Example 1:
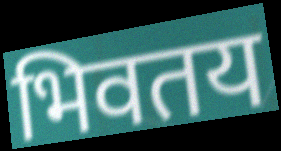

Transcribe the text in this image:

भिवतय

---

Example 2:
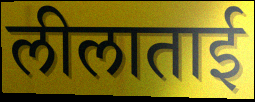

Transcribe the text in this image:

लीलाताई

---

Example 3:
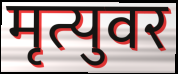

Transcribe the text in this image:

मृत्युवर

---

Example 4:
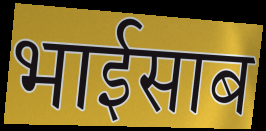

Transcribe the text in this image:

भाईसाब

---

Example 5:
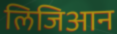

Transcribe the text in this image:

लिजिआन